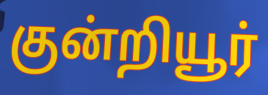
குன்றியூர்